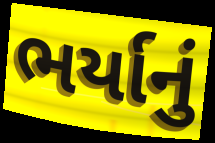
ભર્યાનું